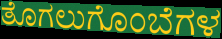
ತೊಗಲುಗೊಂಬೆಗಳ